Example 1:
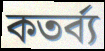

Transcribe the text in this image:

কতর্ব্য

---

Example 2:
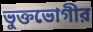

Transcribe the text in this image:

ভুক্তভোগীর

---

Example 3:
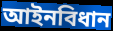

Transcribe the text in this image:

আইনবিধান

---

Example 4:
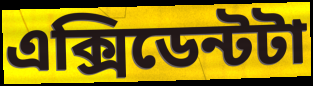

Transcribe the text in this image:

এক্সিডেন্টটা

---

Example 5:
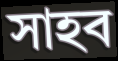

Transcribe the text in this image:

সাহব